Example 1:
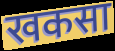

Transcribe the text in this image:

खकसा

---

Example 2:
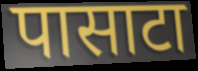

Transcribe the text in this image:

पासाटा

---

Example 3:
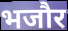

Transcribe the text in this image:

भजौर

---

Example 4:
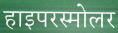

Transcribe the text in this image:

हाइपरस्मोलर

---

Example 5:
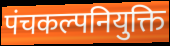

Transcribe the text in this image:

पंचकल्पनियुक्ति